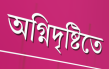
অগ্নিদৃষ্টিতে